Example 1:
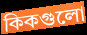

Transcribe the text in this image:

কিকগুলো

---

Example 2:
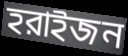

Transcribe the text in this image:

হরাইজন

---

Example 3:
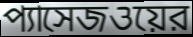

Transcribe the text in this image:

প্যাসেজওয়ের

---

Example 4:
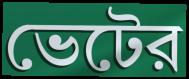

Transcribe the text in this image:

ভেটের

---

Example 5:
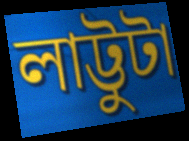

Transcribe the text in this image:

লাট্টুটা